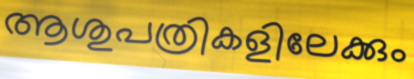
ആശുപത്രികളിലേക്കും